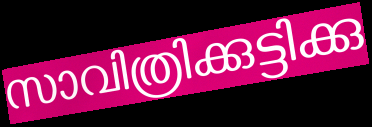
സാവിത്രിക്കുട്ടിക്കു